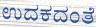
ಉದಕದಂತೆ